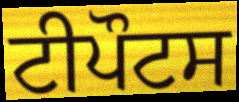
ਟੀਪੌਟਸ